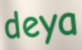
deya